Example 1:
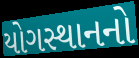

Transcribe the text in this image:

યોગસ્થાનનો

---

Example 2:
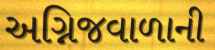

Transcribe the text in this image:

અગ્નિજવાળાની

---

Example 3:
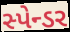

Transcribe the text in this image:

સ્પેન્ડર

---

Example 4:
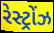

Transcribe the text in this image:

રેસ્ટ્રોંઝ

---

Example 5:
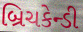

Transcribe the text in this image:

બ્રિચકેન્ડી